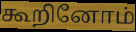
கூறினோம்